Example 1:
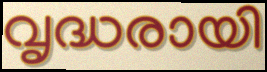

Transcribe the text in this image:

വൃദ്ധരായി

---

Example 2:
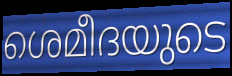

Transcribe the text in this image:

ശെമീദയുടെ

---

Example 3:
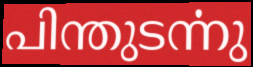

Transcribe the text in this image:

പിന്തുടൎന്നു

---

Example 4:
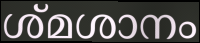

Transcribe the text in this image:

ശ്മശാനം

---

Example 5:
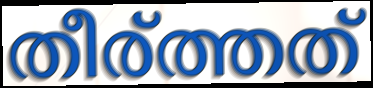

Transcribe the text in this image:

തീര്ത്തത്